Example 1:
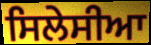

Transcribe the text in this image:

ਸਿਲੇਸੀਆ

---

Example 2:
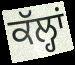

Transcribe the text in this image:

ਕੱਲ੍ਹਾਂ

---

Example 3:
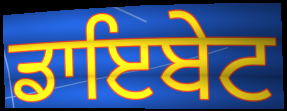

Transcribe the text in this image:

ਡਾਇਬੇਟ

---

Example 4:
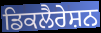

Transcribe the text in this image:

ਡਿਕਲੈਰੇਸ਼ਨ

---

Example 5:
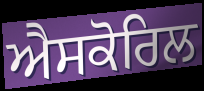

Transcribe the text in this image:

ਐਸਕੋਰਿਲ